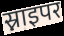
स्नाइपर